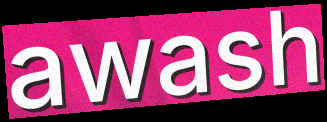
awash